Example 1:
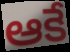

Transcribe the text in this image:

ఆకే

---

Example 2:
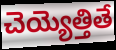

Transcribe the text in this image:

చెయ్యెత్తితే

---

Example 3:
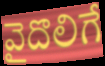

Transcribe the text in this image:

వైదొలిగే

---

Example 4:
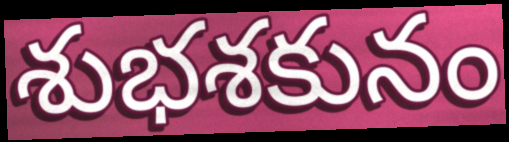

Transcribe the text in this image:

శుభశకునం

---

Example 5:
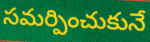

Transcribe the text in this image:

సమర్పించుకునే